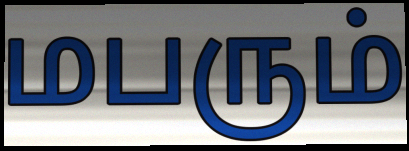
மபரும்